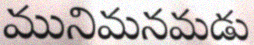
మునిమనమడు